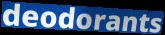
deodorants